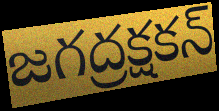
జగద్రక్షకన్